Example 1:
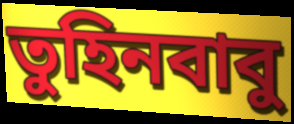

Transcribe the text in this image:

তুহিনবাবু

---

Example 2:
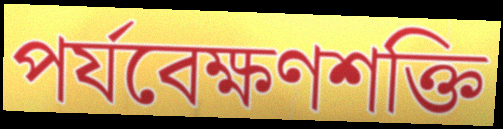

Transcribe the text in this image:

পর্যবেক্ষণশক্তি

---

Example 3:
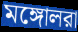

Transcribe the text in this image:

মঙ্গোলরা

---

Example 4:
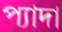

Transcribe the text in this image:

প্যাদা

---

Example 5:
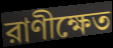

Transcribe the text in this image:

রাণীক্ষেত